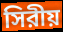
সিরীয়